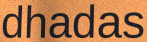
dhadas